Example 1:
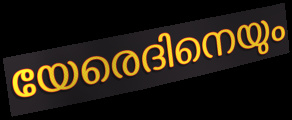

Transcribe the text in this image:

യേരെദിനെയും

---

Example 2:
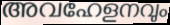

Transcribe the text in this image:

അവഹേളനവും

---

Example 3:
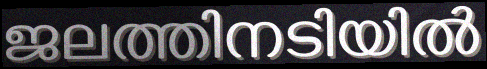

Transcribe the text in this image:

ജലത്തിനടിയിൽ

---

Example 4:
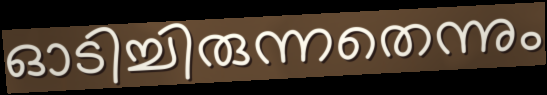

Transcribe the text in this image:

ഓടിച്ചിരുന്നതെന്നും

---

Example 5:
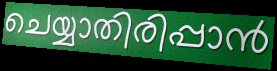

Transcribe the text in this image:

ചെയ്യാതിരിപ്പാൻ